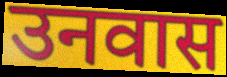
उनवास